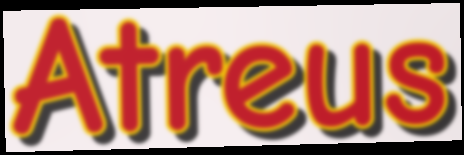
Atreus